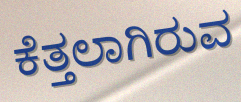
ಕೆತ್ತಲಾಗಿರುವ